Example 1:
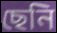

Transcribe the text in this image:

ছেনি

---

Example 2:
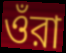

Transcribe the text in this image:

ওঁরা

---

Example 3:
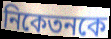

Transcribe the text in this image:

নিকেতনকে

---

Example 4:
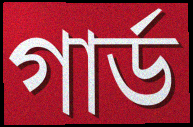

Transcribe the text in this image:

গার্ড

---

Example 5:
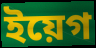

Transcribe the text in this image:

ইয়েগ